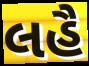
લહૈ